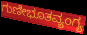
ಗುಣೀಭೂತವ್ಯಂಗ್ಯ